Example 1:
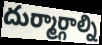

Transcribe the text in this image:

దుర్మార్గాల్ని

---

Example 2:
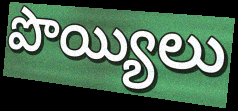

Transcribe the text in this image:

పొయ్యిలు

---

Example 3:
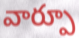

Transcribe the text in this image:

వార్పూ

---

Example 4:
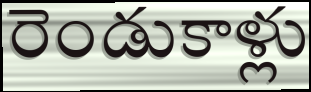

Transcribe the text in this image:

రెండుకాళ్లు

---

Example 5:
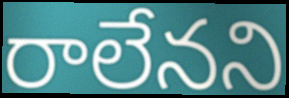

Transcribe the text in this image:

రాలేనని